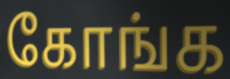
கோங்க